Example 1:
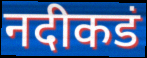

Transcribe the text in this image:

नदीकडं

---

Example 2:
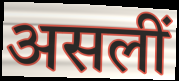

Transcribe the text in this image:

असलीं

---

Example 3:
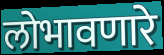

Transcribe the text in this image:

लोभावणारे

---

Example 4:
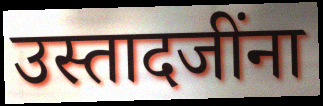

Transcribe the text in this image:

उस्तादजींना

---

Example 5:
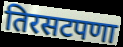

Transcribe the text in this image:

तिरसटपणा